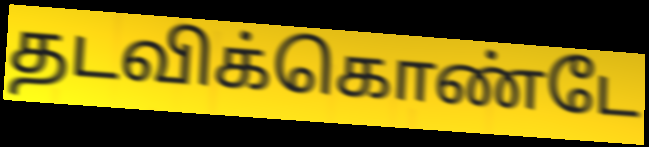
தடவிக்கொண்டே